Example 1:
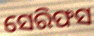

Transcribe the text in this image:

ସେରିଫସ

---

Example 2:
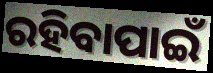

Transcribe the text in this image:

ରହିବାପାଇଁ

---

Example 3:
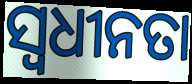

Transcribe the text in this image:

ସ୍ୱଧୀନତା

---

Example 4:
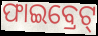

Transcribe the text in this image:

ଫାଇବ୍ରେଟ୍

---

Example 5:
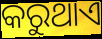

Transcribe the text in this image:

କରୁଥାଏ